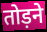
तोड़ने